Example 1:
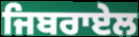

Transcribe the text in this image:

ਜਿਬਰਾਏਲ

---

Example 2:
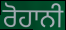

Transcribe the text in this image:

ਰੋਹਾਨੀ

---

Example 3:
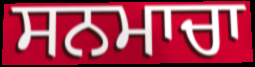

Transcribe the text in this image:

ਸਨਮਾਚਾ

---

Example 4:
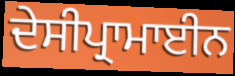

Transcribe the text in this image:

ਦੇਸੀਪ੍ਰਾਮਾਈਨ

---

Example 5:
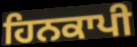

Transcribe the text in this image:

ਹਿਨਕਾਪੀ